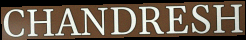
CHANDRESH